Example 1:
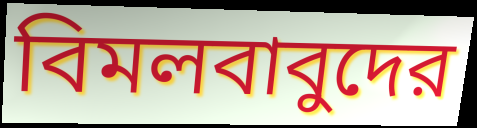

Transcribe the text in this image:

বিমলবাবুদের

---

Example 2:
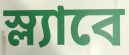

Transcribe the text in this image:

স্ল্যাবে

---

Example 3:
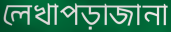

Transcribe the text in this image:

লেখাপড়াজানা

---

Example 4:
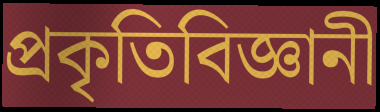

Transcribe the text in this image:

প্রকৃতিবিজ্ঞানী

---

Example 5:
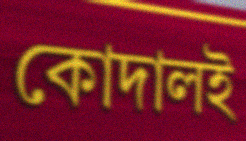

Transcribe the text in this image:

কোদালই